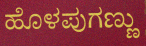
ಹೊಳಪುಗಣ್ಣು